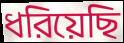
ধরিয়েছি